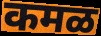
कमळ